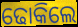
ଢୋକିଲେ